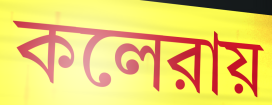
কলেরায়